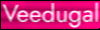
Veedugal